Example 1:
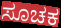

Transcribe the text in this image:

ಸೂಚಕ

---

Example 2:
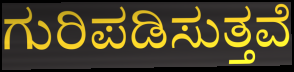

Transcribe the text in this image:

ಗುರಿಪಡಿಸುತ್ತವೆ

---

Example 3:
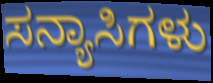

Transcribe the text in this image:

ಸನ್ಯಾಸಿಗಳು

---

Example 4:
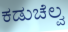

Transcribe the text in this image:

ಕಡುಚೆಲ್ವ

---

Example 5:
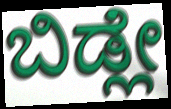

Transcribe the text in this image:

ಬಿಡ್ಲೇ